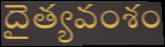
దైత్యవంశం